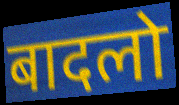
बादलो